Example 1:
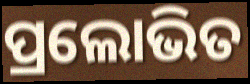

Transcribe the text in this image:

ପ୍ରଲୋଭିତ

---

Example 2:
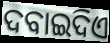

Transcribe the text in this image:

ଦବାଇଦିଏ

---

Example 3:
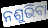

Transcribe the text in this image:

ନଶୁଭିବା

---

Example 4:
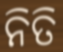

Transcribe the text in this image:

ନିତି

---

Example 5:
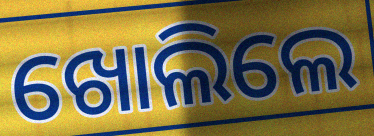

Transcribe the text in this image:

ଖୋଲିଲେ